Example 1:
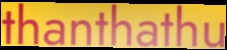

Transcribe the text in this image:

thanthathu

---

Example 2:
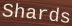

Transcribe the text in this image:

Shards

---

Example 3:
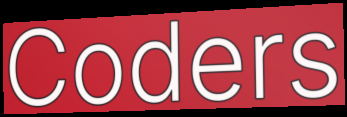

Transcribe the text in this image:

Coders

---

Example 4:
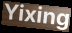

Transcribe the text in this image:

Yixing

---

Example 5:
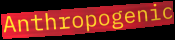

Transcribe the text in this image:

Anthropogenic